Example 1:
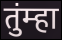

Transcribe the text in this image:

तुंम्हा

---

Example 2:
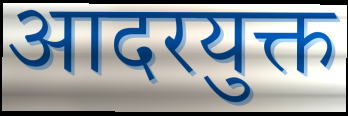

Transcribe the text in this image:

आदरयुक्त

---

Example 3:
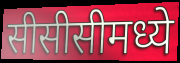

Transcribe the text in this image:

सीसीसीमध्ये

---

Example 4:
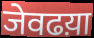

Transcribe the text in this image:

जेवढय़ा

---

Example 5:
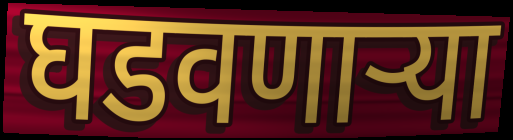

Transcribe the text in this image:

घडवणाऱ्या